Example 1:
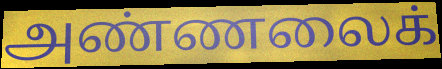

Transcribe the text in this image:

அண்ணலைக்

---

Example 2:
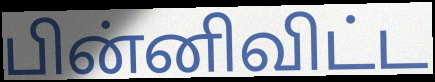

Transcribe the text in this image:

பின்னிவிட்ட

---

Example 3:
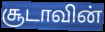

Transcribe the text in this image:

சூடாவின்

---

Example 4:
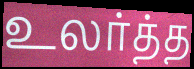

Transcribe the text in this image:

உலர்த்த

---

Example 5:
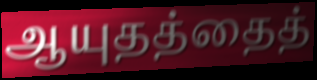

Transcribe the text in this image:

ஆயுதத்தைத்